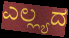
ಎಲ್ಲ್ಯದ